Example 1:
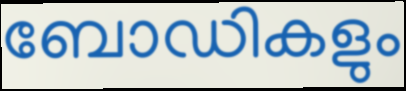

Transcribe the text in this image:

ബോഡികളും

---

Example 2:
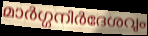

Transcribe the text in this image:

മാർഗ്ഗനിർദേശവും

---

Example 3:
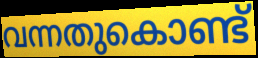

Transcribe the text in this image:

വന്നതുകൊണ്ട്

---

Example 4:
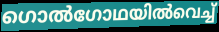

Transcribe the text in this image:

ഗൊൽഗോഥയിൽവെച്ച്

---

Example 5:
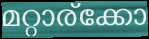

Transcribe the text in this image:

മറ്റാര്ക്കോ